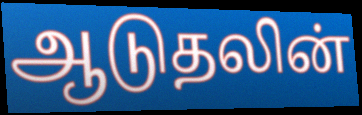
ஆடுதலின்